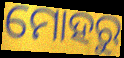
ମୋହରୁ